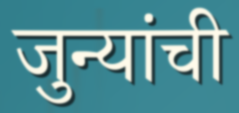
जुन्यांची